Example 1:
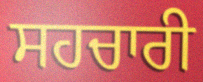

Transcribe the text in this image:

ਸਹਚਾਰੀ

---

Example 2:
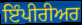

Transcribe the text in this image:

ਇੰਪੀਰੀਅਰ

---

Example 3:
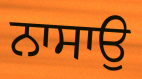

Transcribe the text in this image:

ਨਾਸਾਉ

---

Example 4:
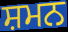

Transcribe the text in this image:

ਸ਼ਮਨ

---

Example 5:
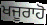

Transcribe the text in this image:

ਖਜੂਰਾਹੋ